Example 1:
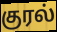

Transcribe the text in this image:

குரல்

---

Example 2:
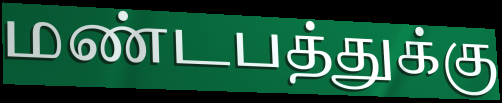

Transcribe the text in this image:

மண்டபத்துக்கு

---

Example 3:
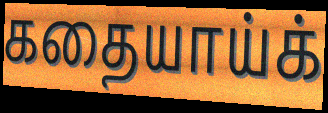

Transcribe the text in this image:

கதையாய்க்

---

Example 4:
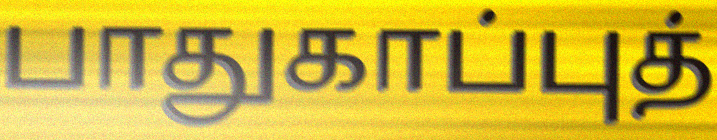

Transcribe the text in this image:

பாதுகாப்புத்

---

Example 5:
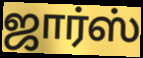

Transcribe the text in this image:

ஜார்ஸ்